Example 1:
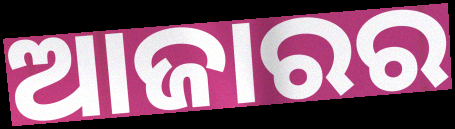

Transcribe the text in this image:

ଆଜାରର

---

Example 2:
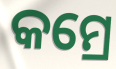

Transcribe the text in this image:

କମ୍ରେ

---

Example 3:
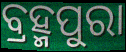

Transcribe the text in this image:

ବ୍ରହ୍ମପୁରା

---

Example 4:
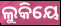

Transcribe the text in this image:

ଲୁକିୟେ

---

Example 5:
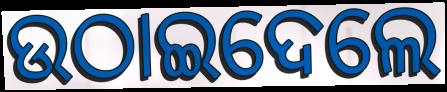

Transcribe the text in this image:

ଉଠାଇଦେଲେ